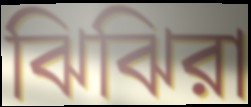
ঝিঝিরা